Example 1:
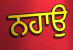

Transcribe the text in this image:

ਨਹਾਉ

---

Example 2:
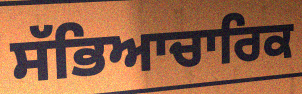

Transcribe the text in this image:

ਸੱਭਿਆਚਾਰਿਕ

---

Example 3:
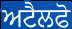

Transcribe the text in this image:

ਅਟੈਲਫੋ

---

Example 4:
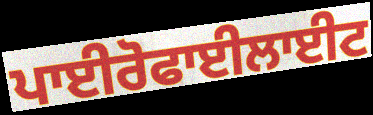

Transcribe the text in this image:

ਪਾਈਰੋਫਾਈਲਾਈਟ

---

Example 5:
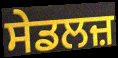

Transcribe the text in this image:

ਸੇਡਲਜ਼